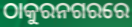
ଠାକୁରନଗରରେ